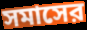
সমাসের